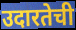
उदारतेची